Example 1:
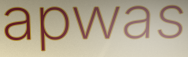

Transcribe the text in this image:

apwas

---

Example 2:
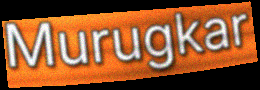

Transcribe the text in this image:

Murugkar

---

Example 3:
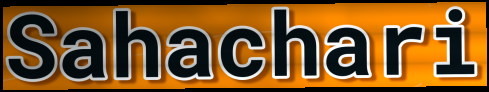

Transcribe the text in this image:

Sahachari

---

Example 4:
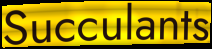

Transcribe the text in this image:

Succulants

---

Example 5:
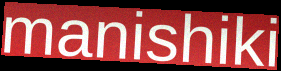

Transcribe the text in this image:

manishiki